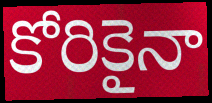
కోరికైనా